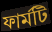
ফার্মটি